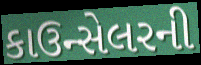
કાઉન્સેલરની